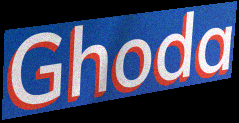
Ghoda